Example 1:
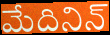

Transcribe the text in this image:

మేదినిన్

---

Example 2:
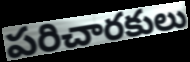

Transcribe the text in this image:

పరిచారకులు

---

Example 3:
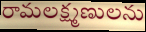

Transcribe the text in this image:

రామలక్ష్మణులను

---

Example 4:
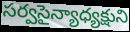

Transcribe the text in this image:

సర్వసైన్యాధ్యక్షుని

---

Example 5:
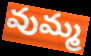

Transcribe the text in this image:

వుమ్మ